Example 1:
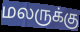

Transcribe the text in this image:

மலருக்கு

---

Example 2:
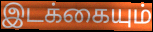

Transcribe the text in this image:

இடக்கையும்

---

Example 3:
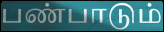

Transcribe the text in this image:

பண்பாடும்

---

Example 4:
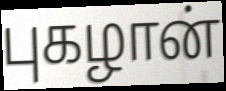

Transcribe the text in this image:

புகழான்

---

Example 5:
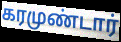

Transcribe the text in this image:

கரமுண்டார்